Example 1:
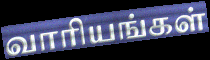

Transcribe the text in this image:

வாரியங்கள்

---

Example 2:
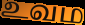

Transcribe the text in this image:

உவம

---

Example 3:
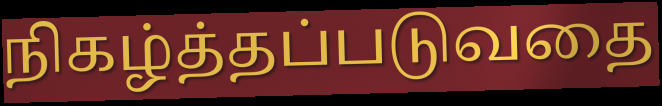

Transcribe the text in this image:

நிகழ்த்தப்படுவதை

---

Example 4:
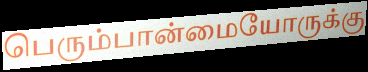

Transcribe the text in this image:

பெரும்பான்மையோருக்கு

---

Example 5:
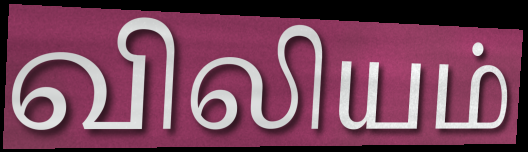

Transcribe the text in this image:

விலியம்